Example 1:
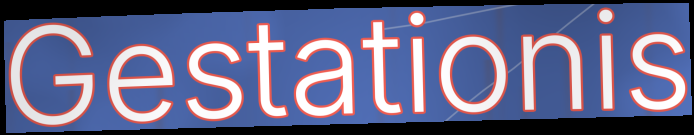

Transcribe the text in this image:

Gestationis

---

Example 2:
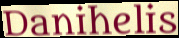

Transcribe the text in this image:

Danihelis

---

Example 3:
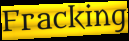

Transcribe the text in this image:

Fracking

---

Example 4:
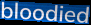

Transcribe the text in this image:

bloodied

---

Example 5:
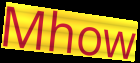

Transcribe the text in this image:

Mhow